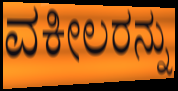
ವಕೀಲರನ್ನು